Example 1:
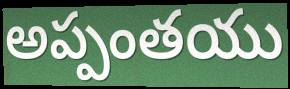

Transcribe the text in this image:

అప్పంతయు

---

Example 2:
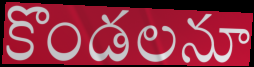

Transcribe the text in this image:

కొండలనూ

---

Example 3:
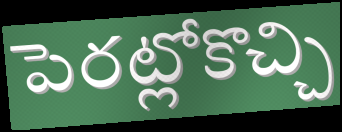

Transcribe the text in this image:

పెరట్లోకొచ్చి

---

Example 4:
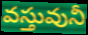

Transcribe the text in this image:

వస్తువునీ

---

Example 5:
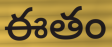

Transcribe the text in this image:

ఈతం